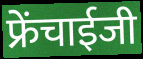
फ्रेंचाईजी